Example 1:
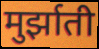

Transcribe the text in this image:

मुर्झाती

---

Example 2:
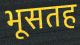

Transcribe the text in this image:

भूसतह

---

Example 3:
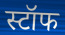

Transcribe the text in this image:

स्टॉफ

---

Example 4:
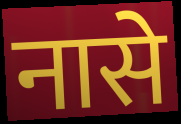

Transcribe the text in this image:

नासे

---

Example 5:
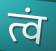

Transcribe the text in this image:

त्वं